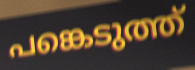
പങ്കെടുത്ത്